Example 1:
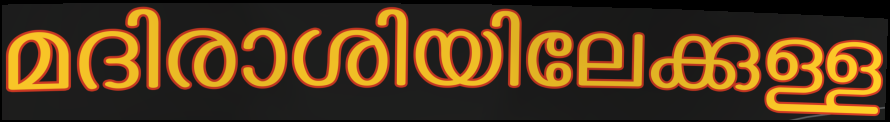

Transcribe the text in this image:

മദിരാശിയിലേക്കുള്ള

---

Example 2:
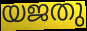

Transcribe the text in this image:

യജതു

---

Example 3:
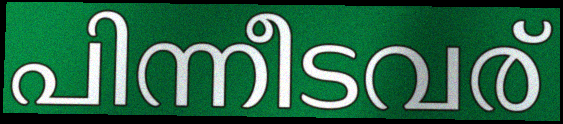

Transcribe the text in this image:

പിന്നീടവര്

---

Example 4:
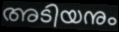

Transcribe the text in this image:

അടിയനും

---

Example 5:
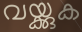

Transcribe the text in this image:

വയ്ക്കുക